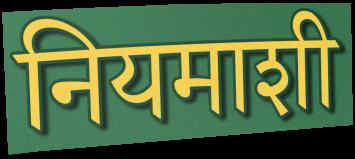
नियमाशी